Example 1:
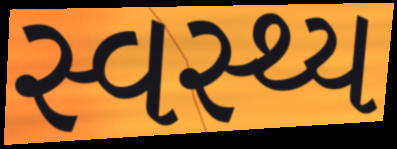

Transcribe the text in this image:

સ્વસ્થ્ય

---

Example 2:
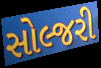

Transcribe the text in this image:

સોલ્જરી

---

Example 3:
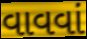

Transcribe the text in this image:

વાવવાં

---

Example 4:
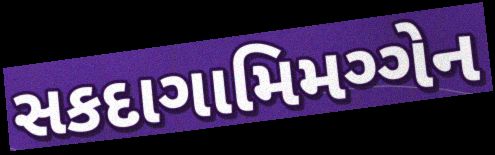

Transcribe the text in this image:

સકદાગામિમગ્ગેન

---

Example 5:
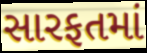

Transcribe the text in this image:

સારફતમાં